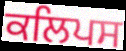
ਕਲਿਪਸ